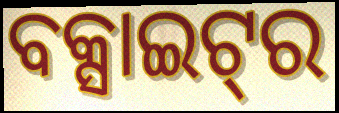
ବକ୍ସାଇଟ୍‌ର